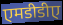
एमडीडीए